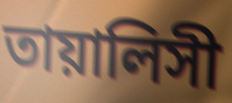
তায়ালিসী